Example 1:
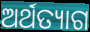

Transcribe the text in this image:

ଅର୍ଥତ୍ୟାଗ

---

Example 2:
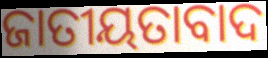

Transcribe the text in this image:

ଜାତୀୟତାବାଦ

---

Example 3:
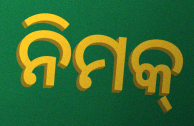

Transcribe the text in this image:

ନିମକ୍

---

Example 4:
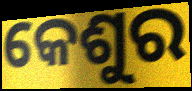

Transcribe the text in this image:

କେଶୁର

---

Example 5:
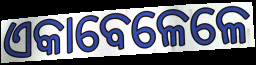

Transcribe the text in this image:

ଏକାବେଳେଳେ